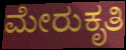
ಮೇರುಕೃತಿ